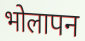
भोलापन